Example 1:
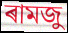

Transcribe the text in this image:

ৰামজু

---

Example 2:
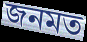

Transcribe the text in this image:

জনমত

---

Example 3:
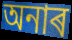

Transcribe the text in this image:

অনাৰ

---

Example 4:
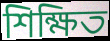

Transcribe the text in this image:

শিক্ষিত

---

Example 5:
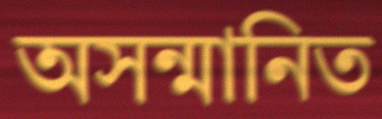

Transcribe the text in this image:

অসন্মানিত